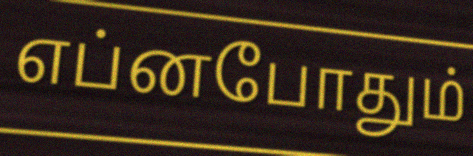
எப்னபோதும்